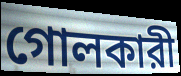
গোলকারী